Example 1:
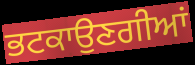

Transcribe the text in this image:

ਭਟਕਾਉਣਗੀਆਂ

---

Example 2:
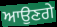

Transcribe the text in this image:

ਆਉਣਗੇ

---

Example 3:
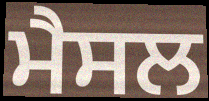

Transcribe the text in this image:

ਮੈਸਲ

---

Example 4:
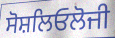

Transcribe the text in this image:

ਸੋਸ਼ਲਿਓਲੋਜੀ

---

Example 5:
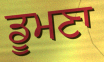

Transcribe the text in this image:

ਡੂਮਣਾ